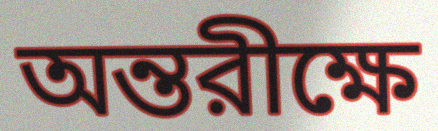
অন্তরীক্ষে